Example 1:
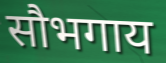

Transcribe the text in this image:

सौभगाय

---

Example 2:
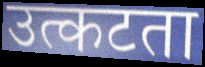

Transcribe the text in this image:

उत्कटता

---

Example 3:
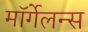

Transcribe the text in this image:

मॉर्गेलन्स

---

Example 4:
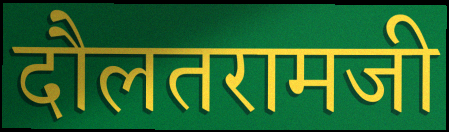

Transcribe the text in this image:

दौलतरामजी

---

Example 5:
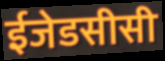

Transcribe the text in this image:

ईजेडसीसी